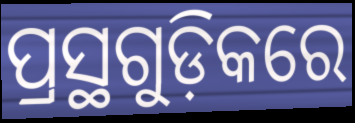
ପ୍ରସ୍ଥଗୁଡ଼ିକରେ